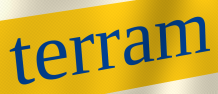
terram